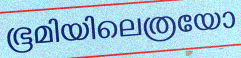
ഭൂമിയിലെത്രയോ